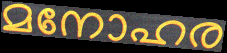
മനോഹര